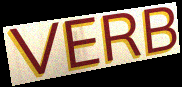
VERB